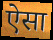
ऐेसा